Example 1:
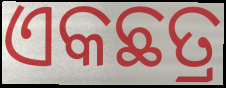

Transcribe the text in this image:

ଏକଛତ୍ର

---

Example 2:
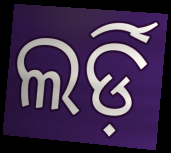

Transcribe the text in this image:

ଲର୍ଡ଼ି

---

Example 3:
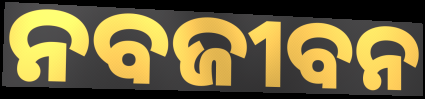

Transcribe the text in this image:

ନବଜୀବନ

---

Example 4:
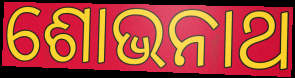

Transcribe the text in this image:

ଶୋଭନାଥ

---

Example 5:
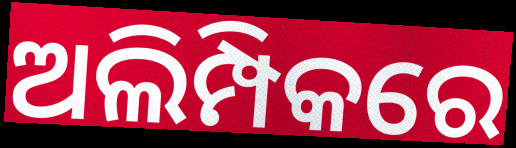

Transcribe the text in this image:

ଅଲିମ୍ପିକରେ